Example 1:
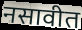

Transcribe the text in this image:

नसावीत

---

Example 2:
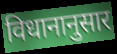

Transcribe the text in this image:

विधानानुसार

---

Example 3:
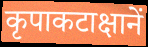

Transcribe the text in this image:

कृपाकटाक्षानें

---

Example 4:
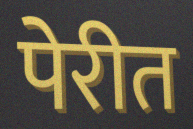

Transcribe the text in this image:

पेरीत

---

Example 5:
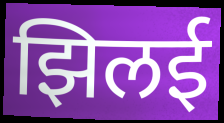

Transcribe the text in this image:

झिलई